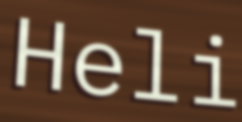
Heli